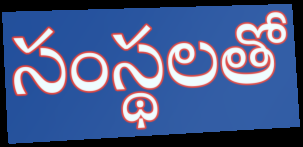
సంస్థలతో